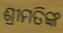
ଶ୍ରୀମତିଙ୍କ